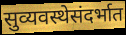
सुव्यवस्थेसंदर्भात